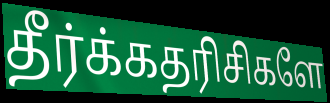
தீர்க்கதரிசிகளே